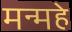
मन्महे